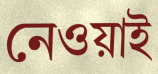
নেওয়াই